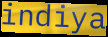
indiya